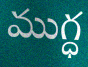
ముగ్ధ